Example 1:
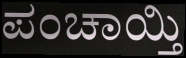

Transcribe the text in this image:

ಪಂಚಾಯ್ತಿ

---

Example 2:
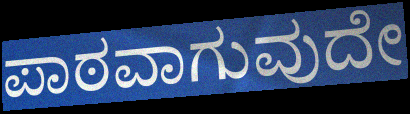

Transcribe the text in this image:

ಪಾಠವಾಗುವುದೇ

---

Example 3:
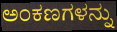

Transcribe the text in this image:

ಅಂಕಣಗಳನ್ನು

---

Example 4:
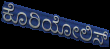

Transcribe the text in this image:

ಕೊರಿಯೋಲಿಸ್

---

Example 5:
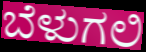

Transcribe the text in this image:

ಬೆಳುಗಲಿ